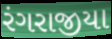
રંગરાજીયા